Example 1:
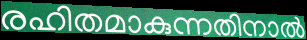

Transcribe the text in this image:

രഹിതമാകുന്നതിനാൽ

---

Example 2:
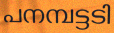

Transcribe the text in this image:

പനമ്പട്ടടി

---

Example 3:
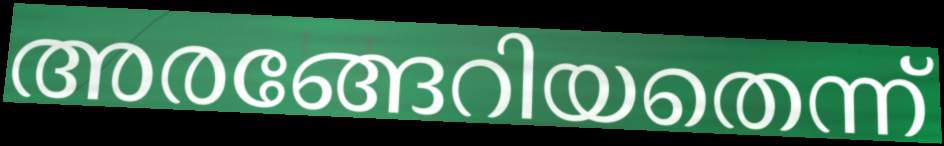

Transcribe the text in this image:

അരങ്ങേറിയതെന്ന്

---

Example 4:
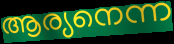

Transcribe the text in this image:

ആര്യനെന്ന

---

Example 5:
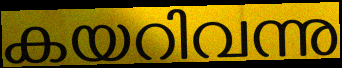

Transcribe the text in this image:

കയറിവന്നു